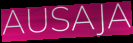
AUSAJA